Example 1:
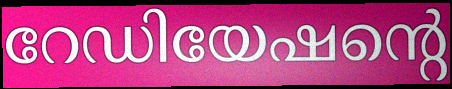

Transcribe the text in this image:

റേഡിയേഷന്റെ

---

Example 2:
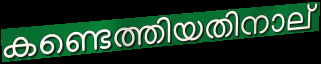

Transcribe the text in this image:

കണ്ടെത്തിയതിനാല്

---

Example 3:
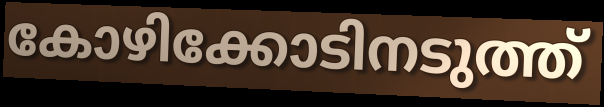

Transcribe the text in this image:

കോഴിക്കോടിനടുത്ത്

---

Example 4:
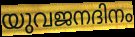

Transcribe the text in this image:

യുവജനദിനം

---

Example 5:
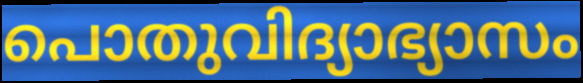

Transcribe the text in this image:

പൊതുവിദ്യാഭ്യാസം